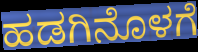
ಹಡಗಿನೊಳಗೆ